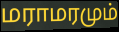
மராமரமும்